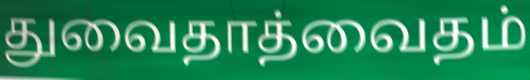
துவைதாத்வைதம்